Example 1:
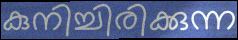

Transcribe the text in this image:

കുനിച്ചിരിക്കുന്ന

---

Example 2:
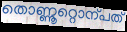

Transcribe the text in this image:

തൊണ്ണൂറ്റൊന്പത്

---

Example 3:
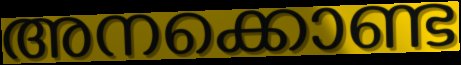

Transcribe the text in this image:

അനക്കൊണ്ട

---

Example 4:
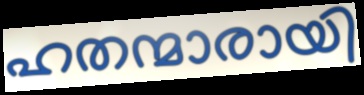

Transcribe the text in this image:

ഹതന്മാരായി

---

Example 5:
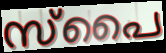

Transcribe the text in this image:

സ്പൈ